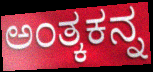
ಅಂತ್ಕಕನ್ನ